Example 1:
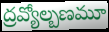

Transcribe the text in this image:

ద్రవ్యోల్బణమూ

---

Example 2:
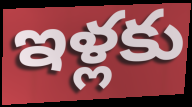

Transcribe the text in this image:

ఇళ్లకు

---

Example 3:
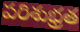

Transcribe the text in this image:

పరిశుభ్రత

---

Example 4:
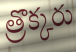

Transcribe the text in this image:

త్రొక్కరు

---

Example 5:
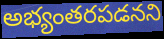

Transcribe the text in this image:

అభ్యంతరపడనని